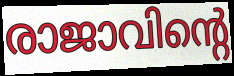
രാജാവിന്റെ